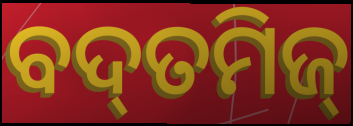
ବଦ୍‌ତମିଜ୍